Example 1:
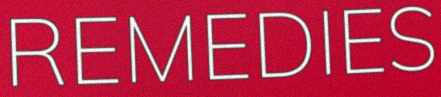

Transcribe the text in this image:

REMEDIES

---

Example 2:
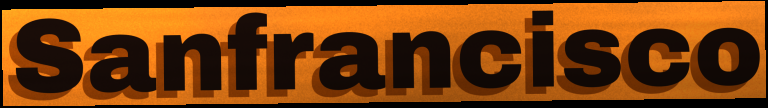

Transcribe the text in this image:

Sanfrancisco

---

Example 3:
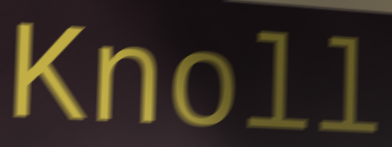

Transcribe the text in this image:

Knoll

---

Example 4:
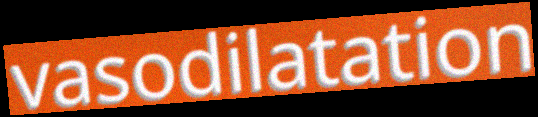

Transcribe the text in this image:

vasodilatation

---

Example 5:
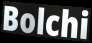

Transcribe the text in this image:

Bolchi